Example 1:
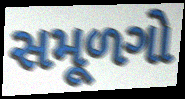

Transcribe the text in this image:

સમૂળગો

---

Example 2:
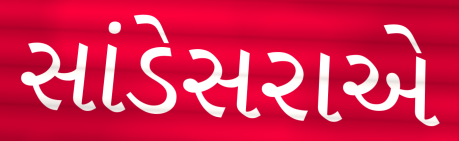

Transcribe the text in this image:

સાંડેસરાએ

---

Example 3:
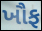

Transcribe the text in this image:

ખૌફ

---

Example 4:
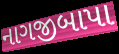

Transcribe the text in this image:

નાગજીબાપા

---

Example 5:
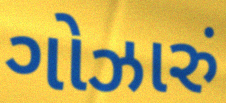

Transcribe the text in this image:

ગોઝારું